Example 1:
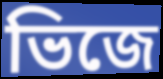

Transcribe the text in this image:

ভিজে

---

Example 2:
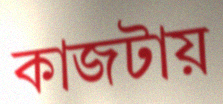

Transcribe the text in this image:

কাজটায়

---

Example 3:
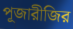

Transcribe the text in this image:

পূজারীজির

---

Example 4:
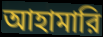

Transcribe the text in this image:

আহামারি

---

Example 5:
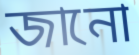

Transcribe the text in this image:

জানো